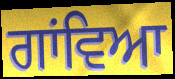
ਗਾਂਵਿਆ